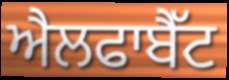
ਐਲਫਾਬੈੱਟ